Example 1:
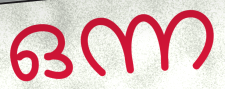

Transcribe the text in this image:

ഒന്ന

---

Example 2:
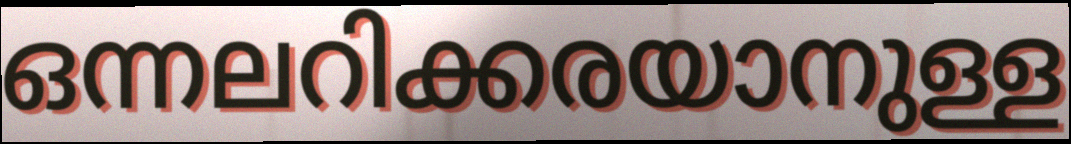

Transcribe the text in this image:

ഒന്നലറിക്കരയാനുള്ള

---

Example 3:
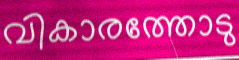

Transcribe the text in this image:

വികാരത്തോടു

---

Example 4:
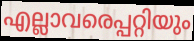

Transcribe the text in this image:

എല്ലാവരെപ്പറ്റിയും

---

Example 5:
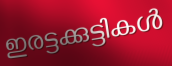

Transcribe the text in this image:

ഇരട്ടക്കുട്ടികൾ